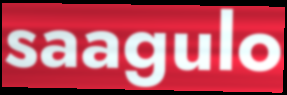
saagulo